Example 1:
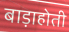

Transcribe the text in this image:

बाड़ाहोती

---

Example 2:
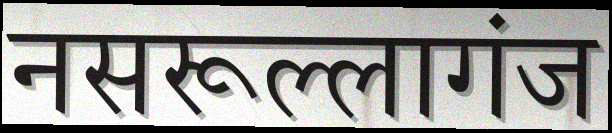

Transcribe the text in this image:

नसरूल्लागंज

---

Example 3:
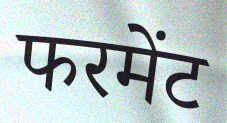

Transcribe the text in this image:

फरमेंट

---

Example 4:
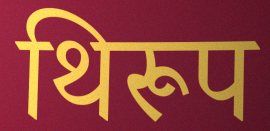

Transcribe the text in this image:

थिरूप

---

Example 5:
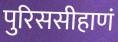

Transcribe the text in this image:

पुरिससीहाणं